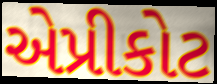
એપ્રીકોટ